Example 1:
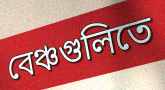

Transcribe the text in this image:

বেঞ্চগুলিতে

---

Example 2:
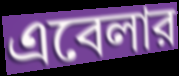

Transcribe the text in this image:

এবেলার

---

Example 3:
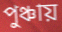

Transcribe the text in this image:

পুঞ্চায়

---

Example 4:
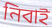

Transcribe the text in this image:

নিবাই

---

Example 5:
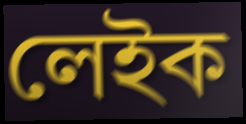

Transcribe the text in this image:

লেইক